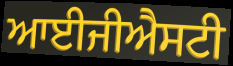
ਆਈਜੀਐਸਟੀ